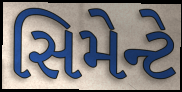
સિમેન્ટે